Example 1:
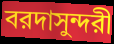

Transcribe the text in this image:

বরদাসুন্দরী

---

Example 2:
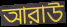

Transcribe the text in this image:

আরাউ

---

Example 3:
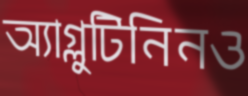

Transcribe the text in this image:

অ্যাগ্লুটিনিনও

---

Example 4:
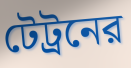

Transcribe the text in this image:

টেট্রনের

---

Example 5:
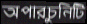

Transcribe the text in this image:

অপারচুনিটি